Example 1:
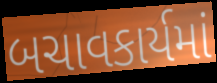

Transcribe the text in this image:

બચાવકાર્યમાં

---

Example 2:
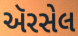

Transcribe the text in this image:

ઍરસેલ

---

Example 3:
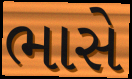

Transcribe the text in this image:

ભાસે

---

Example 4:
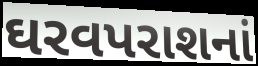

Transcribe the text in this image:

ઘરવપરાશનાં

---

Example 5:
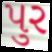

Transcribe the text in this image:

પુર